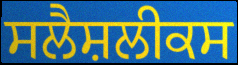
ਸਲੈਸ਼ਲੀਕਸ